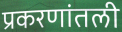
प्रकरणांतली